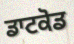
ਡਾਟਕੋਡ